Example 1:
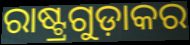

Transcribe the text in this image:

ରାଷ୍ଟ୍ରଗୁଡ଼ାକର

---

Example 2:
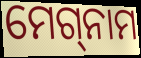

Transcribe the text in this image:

ମେଗ୍‌ନାମ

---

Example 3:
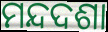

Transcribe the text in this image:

ମନ୍ଦଦଶା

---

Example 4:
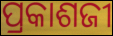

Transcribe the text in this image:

ପ୍ରକାଶଜୀ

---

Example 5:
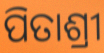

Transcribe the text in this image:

ପିତାଶ୍ରୀ